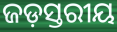
ଜଡ଼ସ୍ତରୀୟ